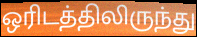
ஒரிடத்திலிருந்து